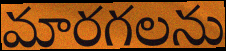
మారగలను